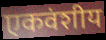
एकवंशीय